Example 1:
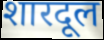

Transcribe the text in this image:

शारदूल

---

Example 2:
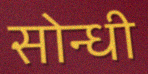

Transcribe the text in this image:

सोन्धी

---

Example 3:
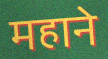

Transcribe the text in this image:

महाने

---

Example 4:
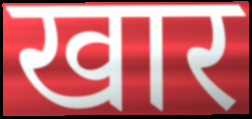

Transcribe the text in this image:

खार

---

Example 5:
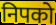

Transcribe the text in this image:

निपको